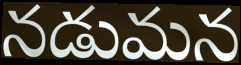
నడుమన